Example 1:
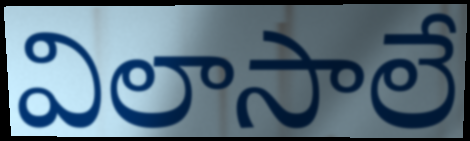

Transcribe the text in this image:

విలాసాలే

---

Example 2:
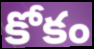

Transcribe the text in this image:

కోకం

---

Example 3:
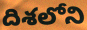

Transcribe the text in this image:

దిశలోని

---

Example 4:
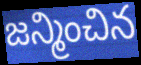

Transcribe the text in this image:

జన్మించిన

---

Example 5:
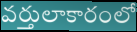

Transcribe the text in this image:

వర్తులాకారంలో